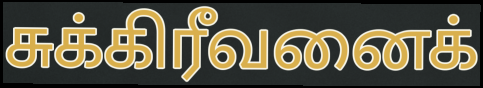
சுக்கிரீவனைக்